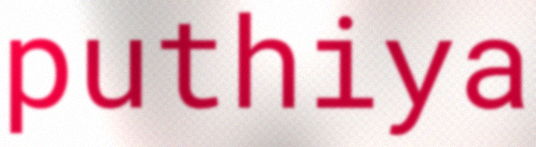
puthiya